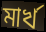
মার্খ